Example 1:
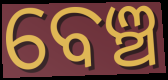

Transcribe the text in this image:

ବେଞ୍ଚ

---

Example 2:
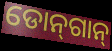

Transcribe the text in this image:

ଡୋନ୍‌ଗାନ୍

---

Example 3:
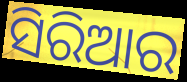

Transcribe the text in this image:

ସିରିଆର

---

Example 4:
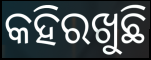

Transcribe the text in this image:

କହିରଖୁଛି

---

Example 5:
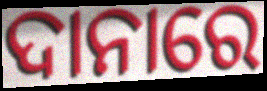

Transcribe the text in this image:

ଦାନାରେ